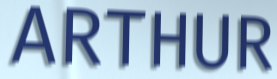
ARTHUR